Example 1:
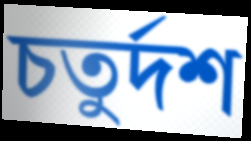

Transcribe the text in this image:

চতুৰ্দশ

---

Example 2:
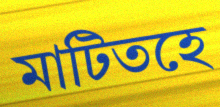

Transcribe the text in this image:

মাটিতহে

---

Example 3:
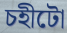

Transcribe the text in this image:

চহীটো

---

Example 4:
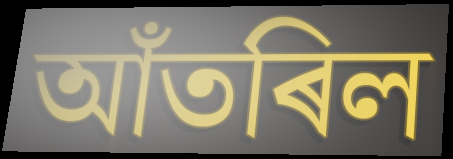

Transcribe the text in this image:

আঁতৰিল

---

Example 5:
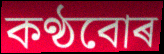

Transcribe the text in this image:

কণ্ঠবোৰ